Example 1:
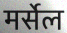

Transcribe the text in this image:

मर्सेल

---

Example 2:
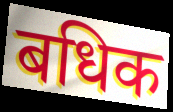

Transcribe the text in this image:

बधिक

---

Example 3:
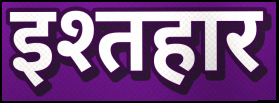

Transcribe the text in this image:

इश्तहार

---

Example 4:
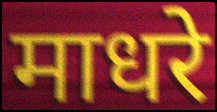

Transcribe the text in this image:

माधरे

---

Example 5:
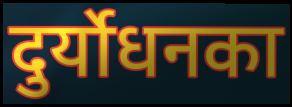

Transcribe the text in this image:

दुर्योधनका